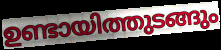
ഉണ്ടായിത്തുടങ്ങും